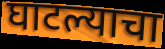
घाटल्याचा